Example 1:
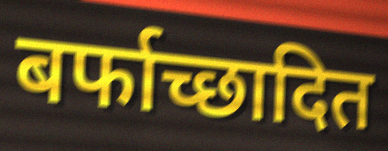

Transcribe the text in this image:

बर्फाच्छादित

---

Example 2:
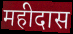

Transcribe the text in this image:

महीदास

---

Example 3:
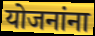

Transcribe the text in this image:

योजनांना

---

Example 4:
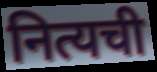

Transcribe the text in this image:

नित्यची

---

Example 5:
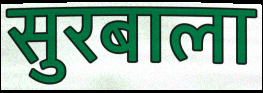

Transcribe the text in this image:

सुरबाला